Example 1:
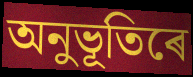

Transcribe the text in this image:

অনুভূতিৰে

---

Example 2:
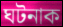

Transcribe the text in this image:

ঘটনাক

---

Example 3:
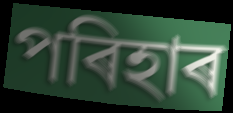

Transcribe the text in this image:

পৰিহাৰ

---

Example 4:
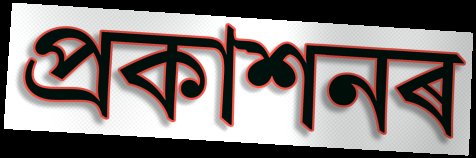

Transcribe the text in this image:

প্ৰকাশনৰ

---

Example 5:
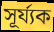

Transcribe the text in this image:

সূৰ্য্যক